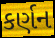
કર્ણન